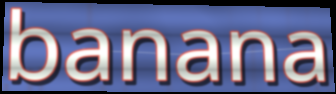
banana